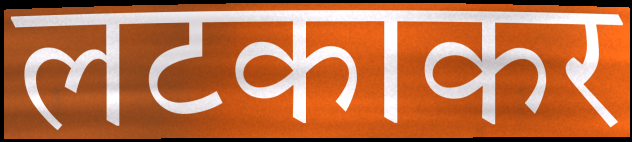
लटकाकर